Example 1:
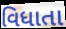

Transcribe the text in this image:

વિધાતા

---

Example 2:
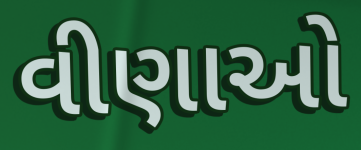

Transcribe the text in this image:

વીણાઓ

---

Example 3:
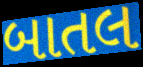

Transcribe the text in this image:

બાતલ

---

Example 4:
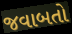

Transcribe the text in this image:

જવાબતો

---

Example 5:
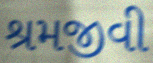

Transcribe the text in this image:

શ્રમજીવી